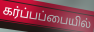
கர்ப்பப்பையில்